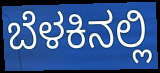
ಬೆಳಕಿನಲ್ಲಿ